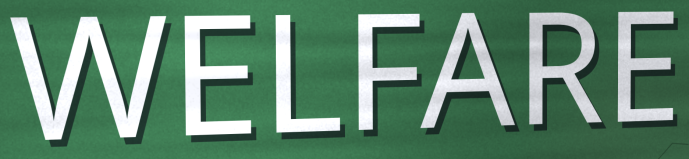
WELFARE